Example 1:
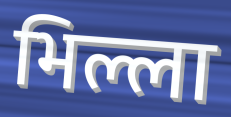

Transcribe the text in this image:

भिल्ला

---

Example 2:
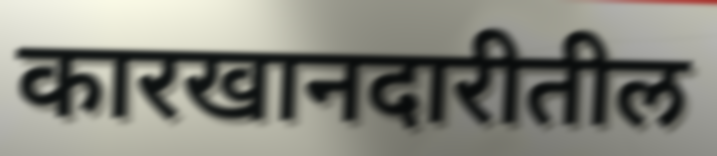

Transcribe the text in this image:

कारखानदारीतील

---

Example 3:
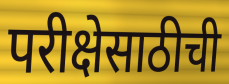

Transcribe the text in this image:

परीक्षेसाठीची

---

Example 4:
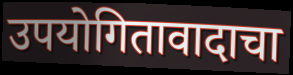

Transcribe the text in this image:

उपयोगितावादाचा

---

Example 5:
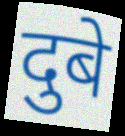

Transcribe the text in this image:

दुबे